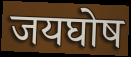
जयघोष